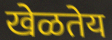
खेळतेय